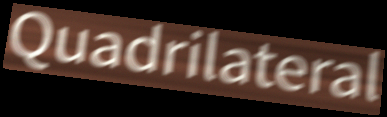
Quadrilateral